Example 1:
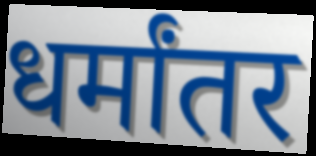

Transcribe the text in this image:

धर्मांतर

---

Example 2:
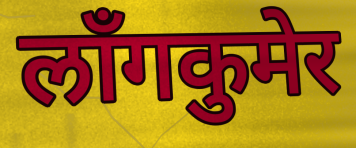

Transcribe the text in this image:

लाँगकुमेर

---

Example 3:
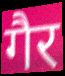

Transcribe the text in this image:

गैर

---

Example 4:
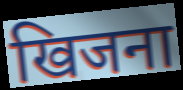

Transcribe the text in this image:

खिजना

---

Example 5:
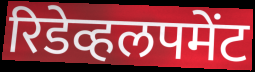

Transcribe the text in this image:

रिडेव्हलपमेंट